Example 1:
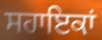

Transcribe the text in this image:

ਸਹਾਇਕਾਂ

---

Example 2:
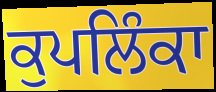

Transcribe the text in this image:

ਕੁਪਲਿੰਕਾ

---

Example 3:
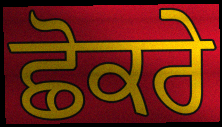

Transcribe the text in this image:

ਛੋਕਰੇ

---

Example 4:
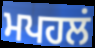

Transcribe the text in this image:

ਮਪਹਲਂ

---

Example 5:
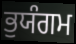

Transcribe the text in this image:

ਭੁਯੰਗਮ